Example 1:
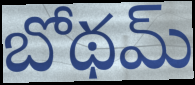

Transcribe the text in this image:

బోథమ్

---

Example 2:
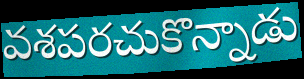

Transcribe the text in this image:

వశపరచుకొన్నాడు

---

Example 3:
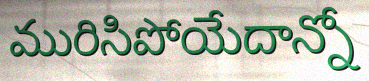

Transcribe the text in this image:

మురిసిపోయేదాన్నో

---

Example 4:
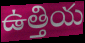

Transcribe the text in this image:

ఉత్తియ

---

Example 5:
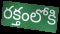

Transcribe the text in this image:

రక్తంలోకి